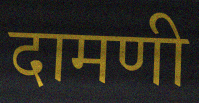
दामणी